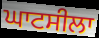
ਘਾਟਸੀਲਾ